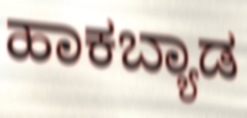
ಹಾಕಬ್ಯಾಡ